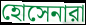
হোসেনারা